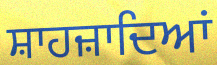
ਸ਼ਾਹਜ਼ਾਦਿਆਂ